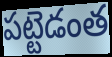
పట్టెడంత